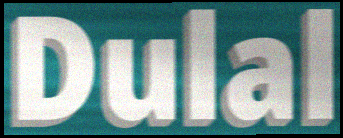
Dulal